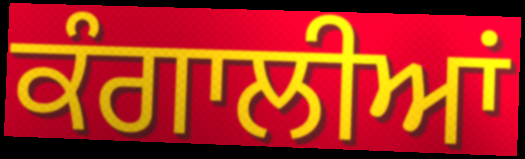
ਕੰਗਾਲੀਆਂ